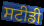
ਸਟੀਡੀ